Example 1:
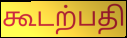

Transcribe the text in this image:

கூடற்பதி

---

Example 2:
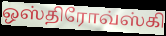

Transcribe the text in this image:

ஒஸ்திரோவ்ஸ்கி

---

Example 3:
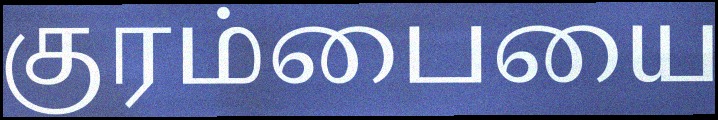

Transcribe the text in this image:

குரம்பையை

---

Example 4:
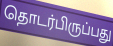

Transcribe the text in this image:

தொடர்பிருப்பது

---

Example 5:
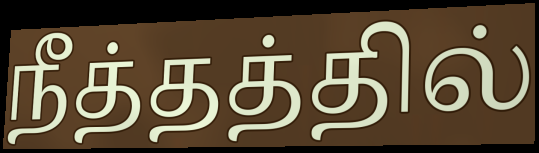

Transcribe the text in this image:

நீத்தத்தில்